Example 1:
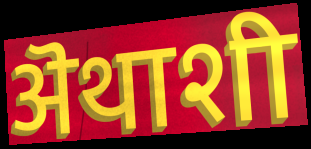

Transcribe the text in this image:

ऄथाशी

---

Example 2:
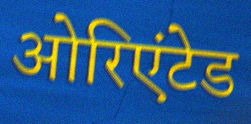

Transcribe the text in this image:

ओरिएंटेड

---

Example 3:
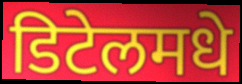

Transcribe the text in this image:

डिटेलमधे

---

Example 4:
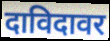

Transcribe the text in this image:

दाविदावर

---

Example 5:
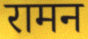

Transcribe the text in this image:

रामन